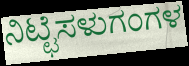
ನಿಟ್ಟೆಸಳುಗಂಗಳ